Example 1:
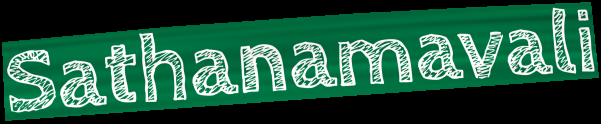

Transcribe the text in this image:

Sathanamavali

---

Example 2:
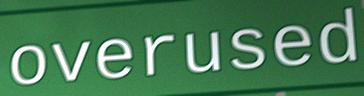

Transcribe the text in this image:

overused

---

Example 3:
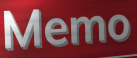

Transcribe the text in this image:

Memo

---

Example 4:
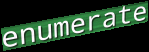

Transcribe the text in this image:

enumerate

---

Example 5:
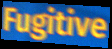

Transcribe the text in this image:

Fugitive